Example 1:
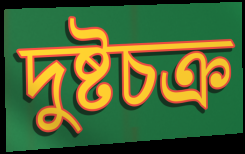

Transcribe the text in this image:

দুষ্টচক্র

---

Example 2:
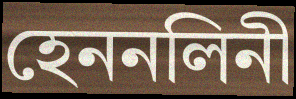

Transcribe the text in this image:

হেননলিনী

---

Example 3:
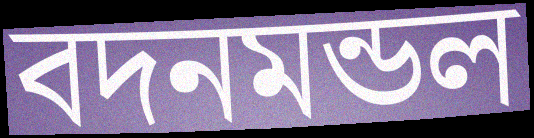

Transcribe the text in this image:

বদনমন্ডল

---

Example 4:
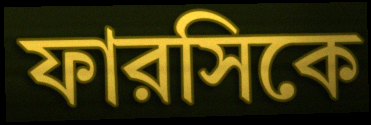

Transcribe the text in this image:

ফারসিকে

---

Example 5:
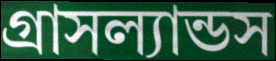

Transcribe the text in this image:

গ্রাসল্যান্ডস